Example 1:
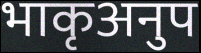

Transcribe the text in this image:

भाकृअनुप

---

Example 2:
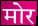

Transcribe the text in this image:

मोर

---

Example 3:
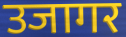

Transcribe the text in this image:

उजागर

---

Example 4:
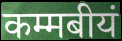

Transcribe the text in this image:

कम्मबीयं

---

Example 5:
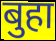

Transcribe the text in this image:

बुहा